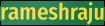
rameshraju